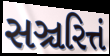
સઞ્ચરિત્તં